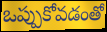
ఒప్పుకోవడంతో